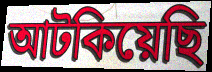
আটকিয়েছি